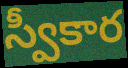
స్వీకార